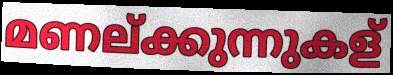
മണല്ക്കുന്നുകള്